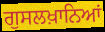
ਗੁਸਲਖ਼ਾਨਿਆਂ